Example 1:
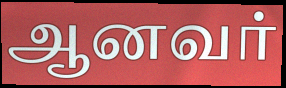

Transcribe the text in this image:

ஆனவர்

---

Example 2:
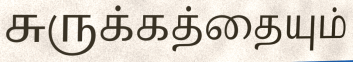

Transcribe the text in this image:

சுருக்கத்தையும்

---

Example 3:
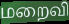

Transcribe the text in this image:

மறைவி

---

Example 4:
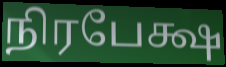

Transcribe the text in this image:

நிரபேக்ஷ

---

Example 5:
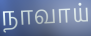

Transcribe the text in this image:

நாவாய்